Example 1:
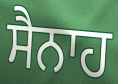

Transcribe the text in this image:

ਸੈਨਾਹ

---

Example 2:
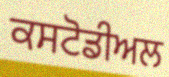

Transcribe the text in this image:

ਕਸਟੋਡੀਅਲ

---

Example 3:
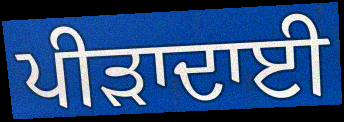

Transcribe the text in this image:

ਪੀੜਾਦਾਈ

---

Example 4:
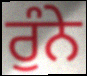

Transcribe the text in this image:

ਰੁੰਨੇ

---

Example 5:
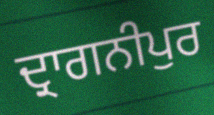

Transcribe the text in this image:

ਦ੍ਰਾਗਨੀਪੁਰ